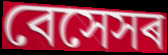
বেসেসৰ